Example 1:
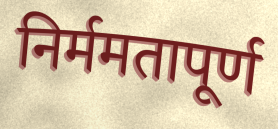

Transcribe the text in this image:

निर्ममतापूर्ण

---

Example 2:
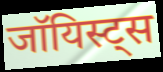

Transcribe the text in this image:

जॉयिस्ट्स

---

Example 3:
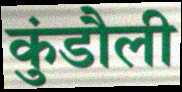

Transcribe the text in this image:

कुंडौली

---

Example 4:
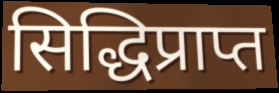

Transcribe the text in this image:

सिद्धिप्राप्त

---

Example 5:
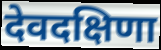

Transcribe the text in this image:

देवदक्षिणा